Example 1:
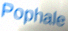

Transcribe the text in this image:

Pophale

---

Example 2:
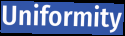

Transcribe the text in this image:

Uniformity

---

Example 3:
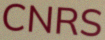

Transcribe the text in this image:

CNRS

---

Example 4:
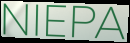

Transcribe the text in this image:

NIEPA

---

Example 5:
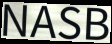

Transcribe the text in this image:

NASB